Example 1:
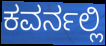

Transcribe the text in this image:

ಕವರ್ನಲ್ಲಿ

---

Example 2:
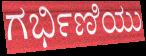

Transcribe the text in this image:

ಗರ್ಭಿಣಿಯು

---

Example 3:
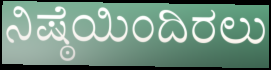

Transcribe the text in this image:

ನಿಷ್ಠೆಯಿಂದಿರಲು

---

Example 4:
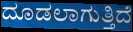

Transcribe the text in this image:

ದೂಡಲಾಗುತ್ತಿದೆ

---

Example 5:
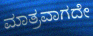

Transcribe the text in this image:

ಮಾತ್ರವಾಗದೇ